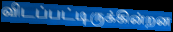
விடப்பட்டிருக்கின்றன